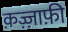
क़ज़्ज़ाफ़ी